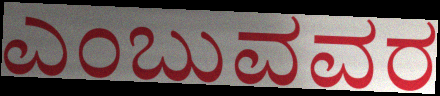
ಎಂಬುವವರ